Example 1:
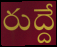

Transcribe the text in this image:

రుద్దే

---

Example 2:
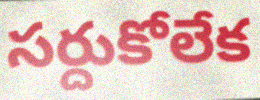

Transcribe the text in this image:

సర్దుకోలేక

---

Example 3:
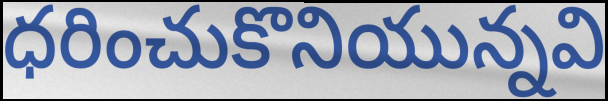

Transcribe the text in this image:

ధరించుకొనియున్నవి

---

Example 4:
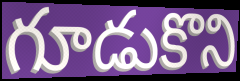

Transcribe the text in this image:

గూడుకొని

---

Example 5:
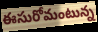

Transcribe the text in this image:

ఈసురోమంటున్న